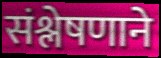
संश्लेषणाने